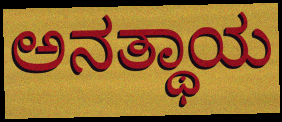
ಅನತ್ಥಾಯ